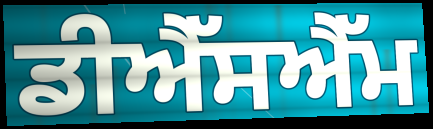
ਡੀਐੱਸਐੱਮ